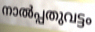
നാൽപ്പതുവട്ടം